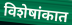
विशेषांकात